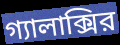
গ্যালাক্সির